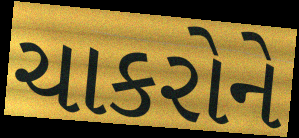
ચાકરોને